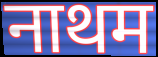
नाथम